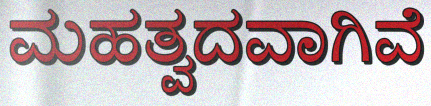
ಮಹತ್ವದವಾಗಿವೆ